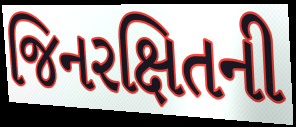
જિનરક્ષિતની